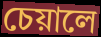
চেয়ালে